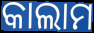
କାଲାମ